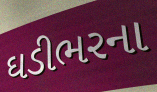
ઘડીભરના